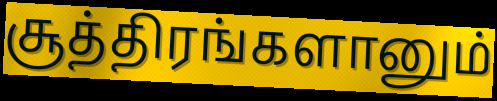
சூத்திரங்களானும்